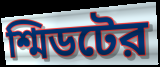
শ্মিডটের